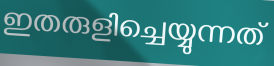
ഇതരുളിച്ചെയ്യുന്നത്